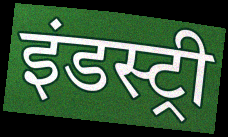
इंडस्‍ट्री